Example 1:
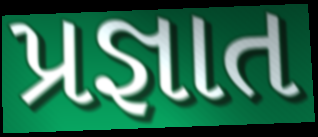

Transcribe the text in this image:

પ્રજ્ઞાત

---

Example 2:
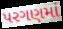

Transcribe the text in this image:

પરગણમાં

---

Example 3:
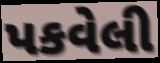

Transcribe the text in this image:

પકવેલી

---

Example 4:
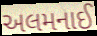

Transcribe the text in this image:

અલમનાઈ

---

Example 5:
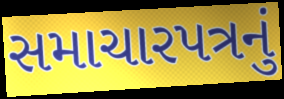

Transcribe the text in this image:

સમાચારપત્રનું